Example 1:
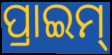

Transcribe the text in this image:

ପ୍ରାଇମ୍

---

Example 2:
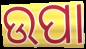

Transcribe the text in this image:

ଉପା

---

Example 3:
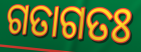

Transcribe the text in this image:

ଗତାଗତଃ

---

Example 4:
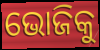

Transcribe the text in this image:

ଭୋଜିକୁ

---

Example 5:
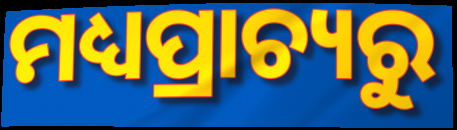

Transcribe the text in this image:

ମଧ୍ୟପ୍ରାଚ୍ୟରୁ